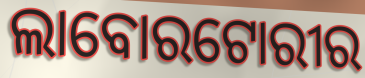
ଲାବୋରଟୋରୀର